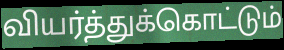
வியர்த்துக்கொட்டும்